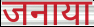
जनाया